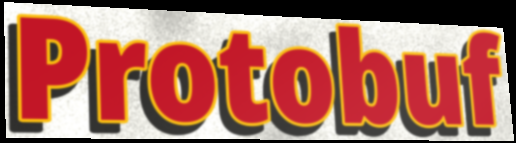
Protobuf